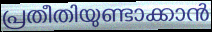
പ്രതീതിയുണ്ടാക്കാൻ